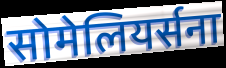
सोमेलियर्सना